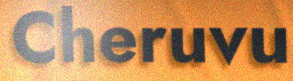
Cheruvu